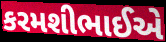
કરમશીભાઈએ